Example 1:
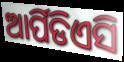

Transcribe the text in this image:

ଆର୍ପିଡିଏସି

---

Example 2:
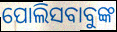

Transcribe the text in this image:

ପୋଲିସବାବୁଙ୍କ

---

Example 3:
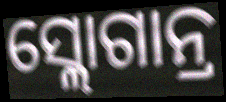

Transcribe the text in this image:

ସ୍ଲୋଗାନ୍ର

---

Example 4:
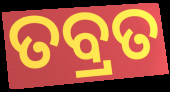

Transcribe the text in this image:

ତବ୍ରତ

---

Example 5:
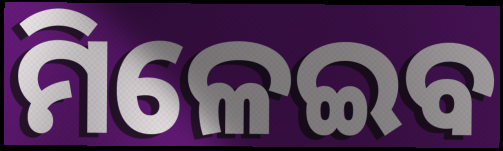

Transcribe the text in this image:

ମିଳେଇବ